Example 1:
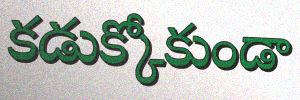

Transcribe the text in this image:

కడుక్కోకుండా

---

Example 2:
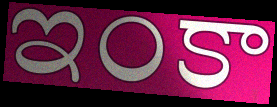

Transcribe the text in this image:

ఇంకా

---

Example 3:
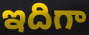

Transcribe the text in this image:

ఇదిగా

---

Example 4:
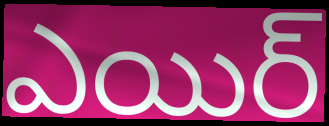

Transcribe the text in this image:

ఎయిర్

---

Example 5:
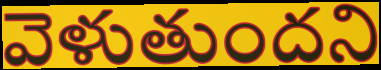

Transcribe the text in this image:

వెళుతుందని